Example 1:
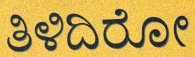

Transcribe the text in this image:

ತಿಳಿದಿರೋ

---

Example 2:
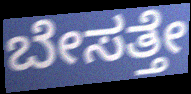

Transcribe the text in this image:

ಬೇಸತ್ತೇ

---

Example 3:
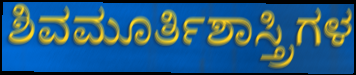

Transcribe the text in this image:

ಶಿವಮೂರ್ತಿಶಾಸ್ತ್ರಿಗಳ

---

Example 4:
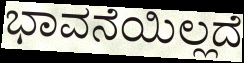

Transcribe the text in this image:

ಭಾವನೆಯಿಲ್ಲದೆ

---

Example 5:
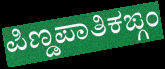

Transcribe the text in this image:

ಪಿಣ್ಡಪಾತಿಕಙ್ಗಂ